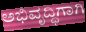
ಅಭಿವೃದ್ಧಿಗಾಗಿ